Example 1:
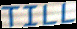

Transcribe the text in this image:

TILL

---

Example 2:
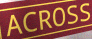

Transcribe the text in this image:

ACROSS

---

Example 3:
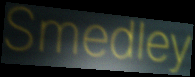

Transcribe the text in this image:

Smedley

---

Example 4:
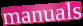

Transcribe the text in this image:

manuals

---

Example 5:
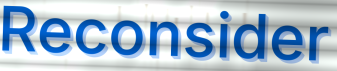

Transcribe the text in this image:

Reconsider